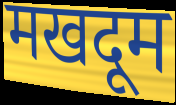
मखदूम